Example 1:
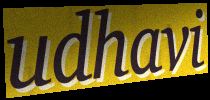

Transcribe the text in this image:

udhavi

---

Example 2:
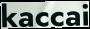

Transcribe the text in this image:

kaccai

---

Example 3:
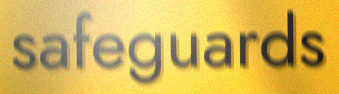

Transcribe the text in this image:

safeguards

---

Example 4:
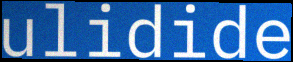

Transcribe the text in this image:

ulidide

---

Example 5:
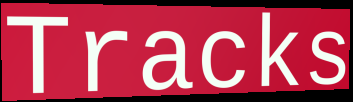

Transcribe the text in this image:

Tracks